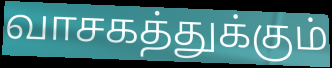
வாசகத்துக்கும்